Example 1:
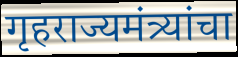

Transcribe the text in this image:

गृहराज्यमंत्र्यांचा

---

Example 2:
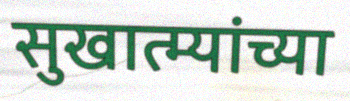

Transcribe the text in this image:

सुखात्म्यांच्या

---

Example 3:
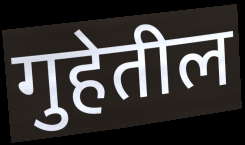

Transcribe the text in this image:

गुहेतील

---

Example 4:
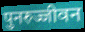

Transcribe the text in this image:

पुनरुज्‍जीवन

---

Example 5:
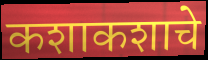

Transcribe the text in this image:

कशाकशाचे